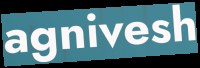
agnivesh